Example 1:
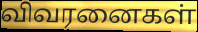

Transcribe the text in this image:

விவரனைகள்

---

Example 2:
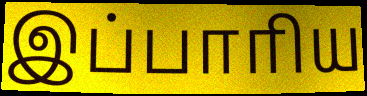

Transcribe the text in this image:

இப்பாரிய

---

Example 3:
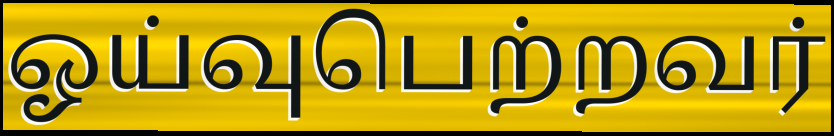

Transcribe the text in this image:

ஓய்வுபெற்றவர்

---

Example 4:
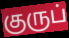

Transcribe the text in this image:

குருப்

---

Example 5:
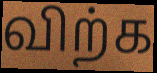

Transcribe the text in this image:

விற்க